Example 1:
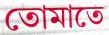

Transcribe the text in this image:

তোমাতে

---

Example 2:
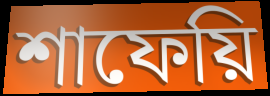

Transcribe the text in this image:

শাফেয়ি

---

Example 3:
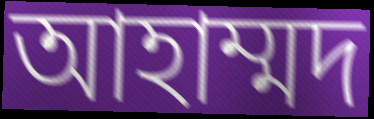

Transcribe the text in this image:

আহাম্মদ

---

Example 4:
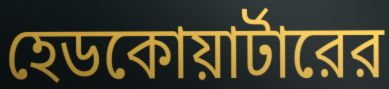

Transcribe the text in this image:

হেডকোয়ার্টারের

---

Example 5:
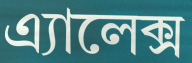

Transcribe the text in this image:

এ্যালেক্স